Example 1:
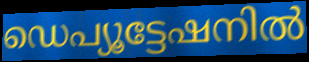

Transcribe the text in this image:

ഡെപ്യൂട്ടേഷനിൽ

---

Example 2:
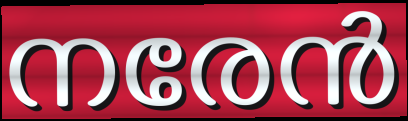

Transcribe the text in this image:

നരേൻ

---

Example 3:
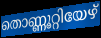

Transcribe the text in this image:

തൊണ്ണൂറ്റിയേഴ്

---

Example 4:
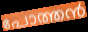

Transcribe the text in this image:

പോത്തൻ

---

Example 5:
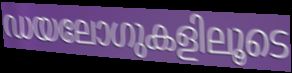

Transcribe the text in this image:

ഡയലോഗുകളിലൂടെ